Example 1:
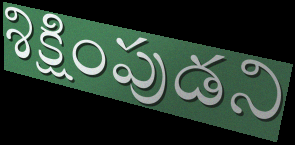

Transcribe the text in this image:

శిక్షింపుడని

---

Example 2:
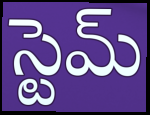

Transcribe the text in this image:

స్టెమ్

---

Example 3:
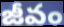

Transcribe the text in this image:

జీవం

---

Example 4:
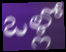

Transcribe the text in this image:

ఒళ్లో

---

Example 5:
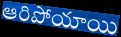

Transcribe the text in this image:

ఆరిపోయాయి